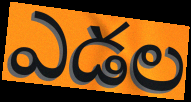
ఎడల